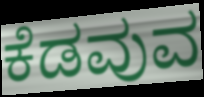
ಕೆಡವುವ